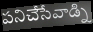
పనిచేసేవాడ్ని